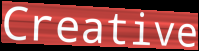
Creative